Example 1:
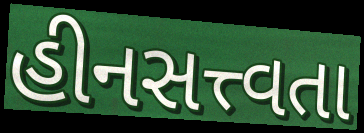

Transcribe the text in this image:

હીનસત્ત્વતા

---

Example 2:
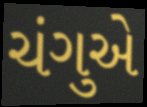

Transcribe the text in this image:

ચંગુએ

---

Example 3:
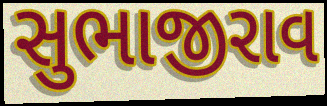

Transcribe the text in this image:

સુભાજીરાવ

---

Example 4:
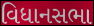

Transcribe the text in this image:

વિધાનસભા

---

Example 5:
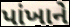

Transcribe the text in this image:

પાંખાને